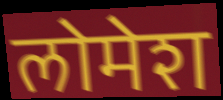
लोमेश